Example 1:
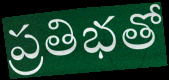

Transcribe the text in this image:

ప్రతిభతో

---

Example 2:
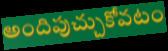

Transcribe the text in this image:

అందిపుచ్చుకోవటం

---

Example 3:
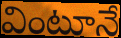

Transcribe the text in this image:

వింటూనే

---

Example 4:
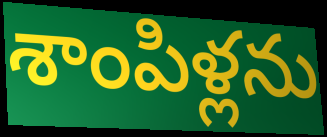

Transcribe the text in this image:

శాంపిళ్లను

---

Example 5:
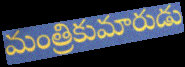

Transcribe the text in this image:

మంత్రికుమారుడు